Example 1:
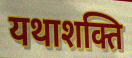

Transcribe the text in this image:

यथाशक्ति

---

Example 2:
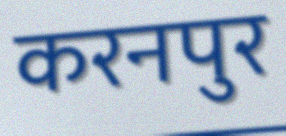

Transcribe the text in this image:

करनपुर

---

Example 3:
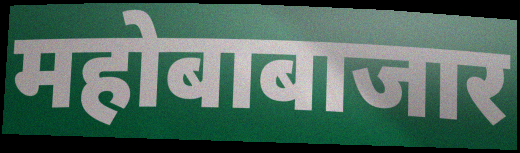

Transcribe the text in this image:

महोबाबाजार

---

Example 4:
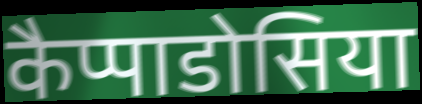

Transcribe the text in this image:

कैप्पाडोसिया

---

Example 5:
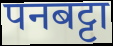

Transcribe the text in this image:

पनबट्टा